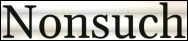
Nonsuch